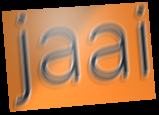
jaai